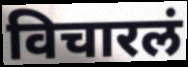
विचारलं